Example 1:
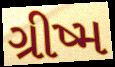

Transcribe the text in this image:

ગ્રીષ્મ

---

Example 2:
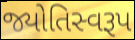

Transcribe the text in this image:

જ્યોતિસ્વરૂપ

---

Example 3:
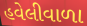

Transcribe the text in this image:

હવેલીવાળા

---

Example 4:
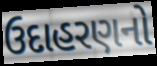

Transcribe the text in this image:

ઉદાહરણનો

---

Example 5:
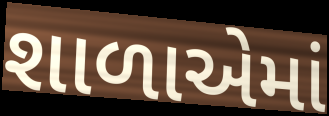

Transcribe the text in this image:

શાળાએમાં